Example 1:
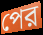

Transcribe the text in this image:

পের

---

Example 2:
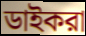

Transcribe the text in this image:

ডাইকরা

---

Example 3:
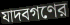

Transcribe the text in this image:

যাদবগণের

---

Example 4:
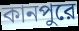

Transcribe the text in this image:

কানপুরে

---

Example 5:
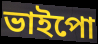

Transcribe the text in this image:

ভাইপো